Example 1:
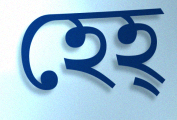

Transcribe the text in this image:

হেহ্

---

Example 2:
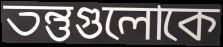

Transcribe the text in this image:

তন্তুগুলোকে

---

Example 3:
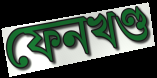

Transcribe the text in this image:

ফেনখণ্ড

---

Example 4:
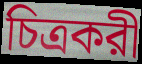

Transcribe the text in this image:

চিত্রকরী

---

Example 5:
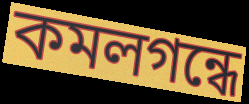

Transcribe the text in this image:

কমলগন্ধে